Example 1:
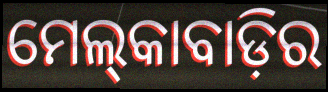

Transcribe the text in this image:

ମେଲ୍‍କାବାଡ଼ିର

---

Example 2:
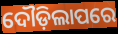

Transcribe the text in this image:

ଦୌଡ଼ିଲାପରେ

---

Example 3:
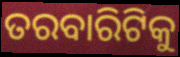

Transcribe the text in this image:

ତରବାରିଟିକୁ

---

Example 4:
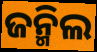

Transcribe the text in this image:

ଜନ୍ମିଲ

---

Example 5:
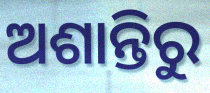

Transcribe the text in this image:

ଅଶାନ୍ତିରୁ